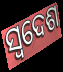
ସ୍ୱଦେଶ